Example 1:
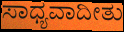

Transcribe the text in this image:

ಸಾಧ್ಯವಾದೀತು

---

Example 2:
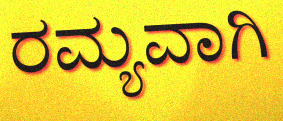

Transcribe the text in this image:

ರಮ್ಯವಾಗಿ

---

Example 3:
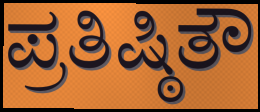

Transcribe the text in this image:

ಪ್ರತಿಷ್ಠಿತೌ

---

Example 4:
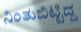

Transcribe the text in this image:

ನಿಂತುಬಿಟ್ಟಿದ್ದ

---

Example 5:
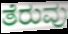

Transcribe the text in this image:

ತೆರುವು